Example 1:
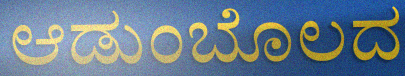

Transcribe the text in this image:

ಆಡುಂಬೊಲದ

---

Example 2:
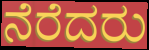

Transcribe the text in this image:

ನೆರೆದರು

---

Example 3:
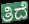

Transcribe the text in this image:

ತಿದೆ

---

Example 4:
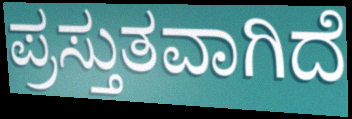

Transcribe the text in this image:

ಪ್ರಸ್ತುತವಾಗಿದೆ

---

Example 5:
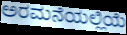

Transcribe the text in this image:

ಅರಮನೆಯಲ್ಲಿಯೆ